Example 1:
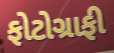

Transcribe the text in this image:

ફોટોગ્રાફી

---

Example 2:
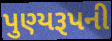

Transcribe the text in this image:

પુણ્યરૂપની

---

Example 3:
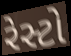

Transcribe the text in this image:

રેસ્ટો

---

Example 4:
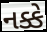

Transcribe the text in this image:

નક્કે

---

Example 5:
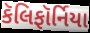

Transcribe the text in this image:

કૅલિફૉર્નિયા